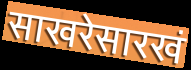
साखरेसारखं